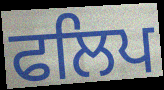
ਫਲਿਪ